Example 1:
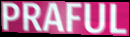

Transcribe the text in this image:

PRAFUL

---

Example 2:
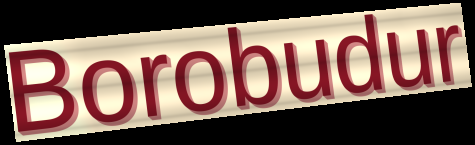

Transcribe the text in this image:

Borobudur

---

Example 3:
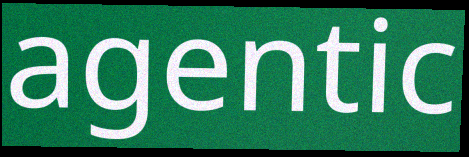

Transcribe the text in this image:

agentic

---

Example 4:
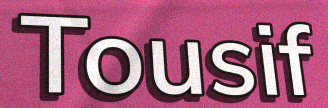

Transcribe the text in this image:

Tousif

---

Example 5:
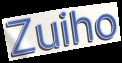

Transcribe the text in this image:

Zuiho